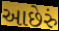
આછેરું